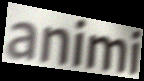
animi